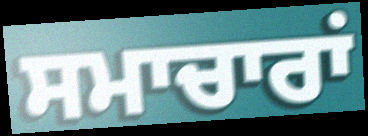
ਸਮਾਚਾਰਾਂ